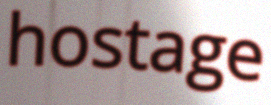
hostage